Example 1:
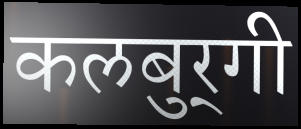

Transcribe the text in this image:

कलबुर्गी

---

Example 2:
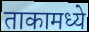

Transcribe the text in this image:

ताकामध्ये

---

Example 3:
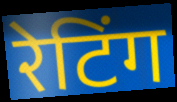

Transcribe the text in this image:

रेटिंग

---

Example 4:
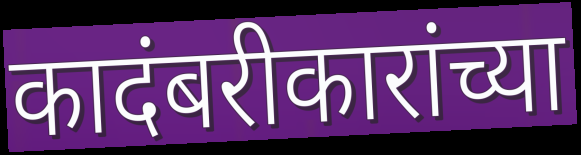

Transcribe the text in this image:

कादंबरीकारांच्या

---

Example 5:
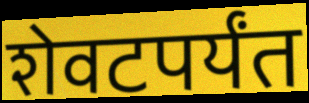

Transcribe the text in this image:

शेवटपर्यंत